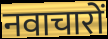
नवाचारों